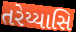
તરેય્યાસિ